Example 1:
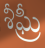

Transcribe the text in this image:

శీఘ్రీ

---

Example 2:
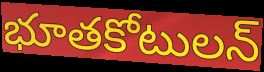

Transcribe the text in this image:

భూతకోటులన్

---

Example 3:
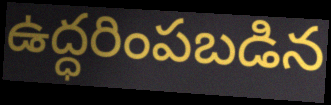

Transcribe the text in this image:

ఉద్ధరింపబడిన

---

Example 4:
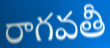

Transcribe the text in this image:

రాగవతీ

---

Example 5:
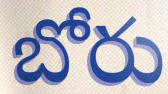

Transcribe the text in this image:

బోరు